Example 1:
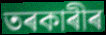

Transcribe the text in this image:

তৰকাৰীৰ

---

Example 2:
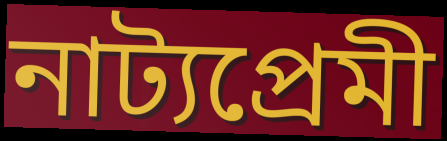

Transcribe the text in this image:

নাট্যপ্ৰেমী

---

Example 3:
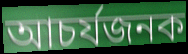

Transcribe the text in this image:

আচৰ্যজনক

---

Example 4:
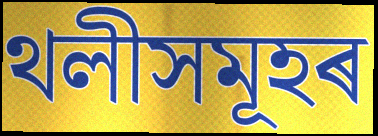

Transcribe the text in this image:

থলীসমূহৰ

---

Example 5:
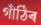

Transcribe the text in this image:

গাঁঠিৰ